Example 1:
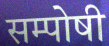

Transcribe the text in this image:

सम्पोषी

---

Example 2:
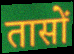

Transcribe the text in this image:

तासों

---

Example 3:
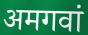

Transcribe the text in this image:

अमगवां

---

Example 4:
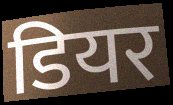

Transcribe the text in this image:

डियर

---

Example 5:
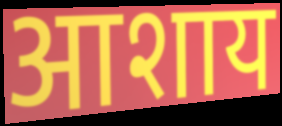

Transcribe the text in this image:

आशाय